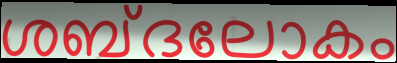
ശബ്ദലോകം